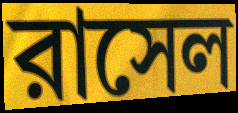
রাসেল